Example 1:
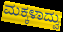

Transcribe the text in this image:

ಮಕ್ಕಳಾದ್ವು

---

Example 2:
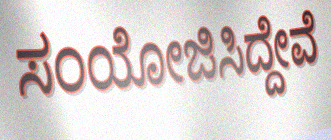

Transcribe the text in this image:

ಸಂಯೋಜಿಸಿದ್ದೇವೆ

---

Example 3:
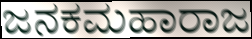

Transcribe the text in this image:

ಜನಕಮಹಾರಾಜ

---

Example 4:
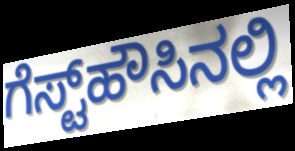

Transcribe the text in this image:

ಗೆಸ್ಟ್‌ಹೌಸಿನಲ್ಲಿ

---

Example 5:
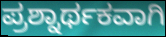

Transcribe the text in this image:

ಪ್ರಶ್ನಾರ್ಥಕವಾಗಿ